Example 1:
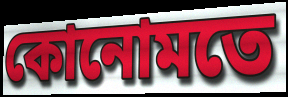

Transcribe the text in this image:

কোনোমতে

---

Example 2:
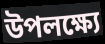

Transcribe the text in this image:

উপলক্ষ্যে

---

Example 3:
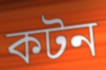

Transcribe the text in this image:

কটন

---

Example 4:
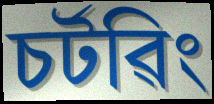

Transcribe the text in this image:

চৰ্টৱিং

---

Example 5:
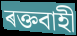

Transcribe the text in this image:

ৰক্তবাহী